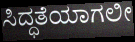
ಸಿದ್ಧತೆಯಾಗಲೀ